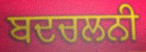
ਬਦਚਲਨੀ